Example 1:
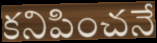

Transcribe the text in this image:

కనిపించనే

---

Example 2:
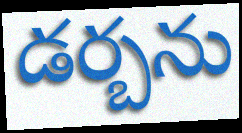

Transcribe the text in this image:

డర్బను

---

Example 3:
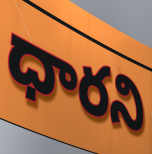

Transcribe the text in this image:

ధారని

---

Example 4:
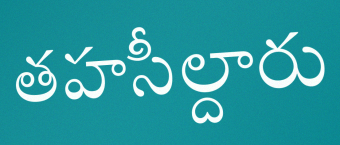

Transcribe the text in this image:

తహసీల్దారు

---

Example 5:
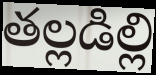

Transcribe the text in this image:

తల్లడిల్లి